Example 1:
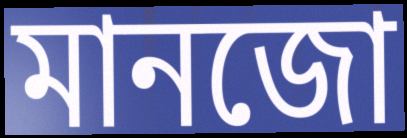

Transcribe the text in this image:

মানজো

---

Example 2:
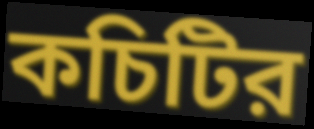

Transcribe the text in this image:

কচিটির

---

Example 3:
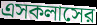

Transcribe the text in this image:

এসকলাসের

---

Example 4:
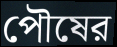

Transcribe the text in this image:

পৌষের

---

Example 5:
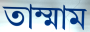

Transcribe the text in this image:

তাম্মাম